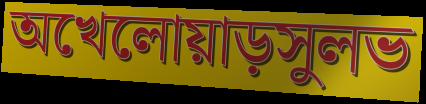
অখেলোয়াড়সুলভ